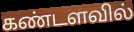
கண்டளவில்